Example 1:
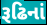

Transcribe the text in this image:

રૂઢિનાં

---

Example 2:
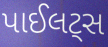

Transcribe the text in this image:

પાઈલટ્સ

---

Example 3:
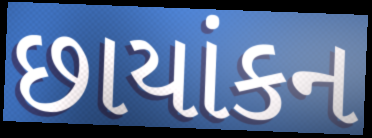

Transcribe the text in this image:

છાયાંકન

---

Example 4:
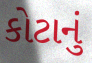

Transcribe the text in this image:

કોટાનું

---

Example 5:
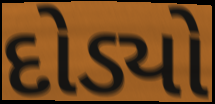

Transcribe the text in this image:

દોડ્યો